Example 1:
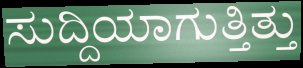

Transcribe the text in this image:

ಸುದ್ದಿಯಾಗುತ್ತಿತ್ತು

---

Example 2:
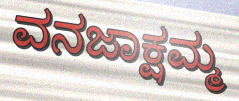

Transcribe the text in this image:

ವನಜಾಕ್ಷಮ್ಮ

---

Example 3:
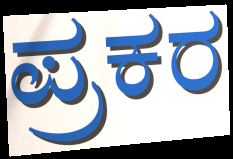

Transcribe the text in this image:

ಪ್ರಕರ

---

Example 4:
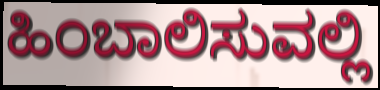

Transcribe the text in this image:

ಹಿಂಬಾಲಿಸುವಲ್ಲಿ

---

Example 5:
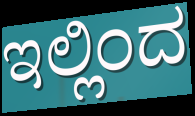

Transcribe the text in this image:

ಇಲ್ಲಿಂದ